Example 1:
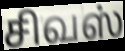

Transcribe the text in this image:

சிவஸ்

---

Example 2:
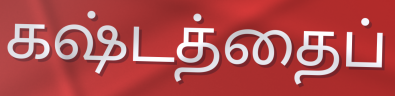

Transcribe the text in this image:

கஷ்டத்தைப்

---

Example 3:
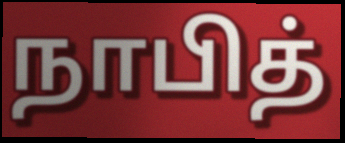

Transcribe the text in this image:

நாபித்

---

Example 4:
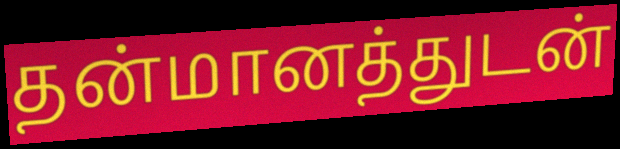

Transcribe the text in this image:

தன்மானத்துடன்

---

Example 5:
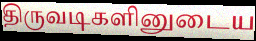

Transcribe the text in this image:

திருவடிகளினுடைய